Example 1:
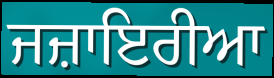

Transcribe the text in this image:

ਜਜ਼ਾਇਰੀਆ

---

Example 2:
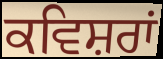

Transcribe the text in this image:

ਕਵਿਸ਼ਰਾਂ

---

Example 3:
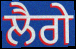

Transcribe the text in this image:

ਲੈਗੇ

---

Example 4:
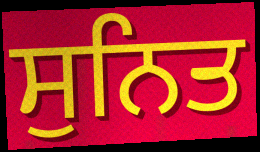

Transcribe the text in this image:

ਸੁਨਿਤ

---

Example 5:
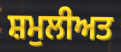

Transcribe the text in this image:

ਸ਼ਮੁਲੀਅਤ